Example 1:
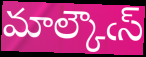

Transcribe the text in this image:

మాల్కౌఁస్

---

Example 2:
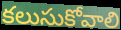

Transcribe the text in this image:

కలుసుకోవాలి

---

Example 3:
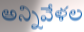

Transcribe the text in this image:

అన్నివేళల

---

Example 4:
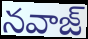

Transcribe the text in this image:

నవాజ్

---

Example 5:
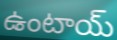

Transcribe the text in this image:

ఉంటాయ్